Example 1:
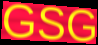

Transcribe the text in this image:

GSG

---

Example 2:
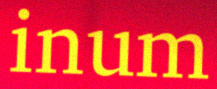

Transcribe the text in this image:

inum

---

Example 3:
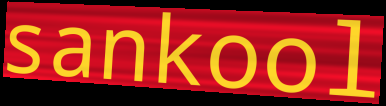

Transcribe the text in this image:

sankool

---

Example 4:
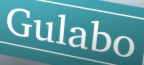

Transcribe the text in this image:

Gulabo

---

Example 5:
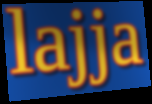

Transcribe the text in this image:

lajja